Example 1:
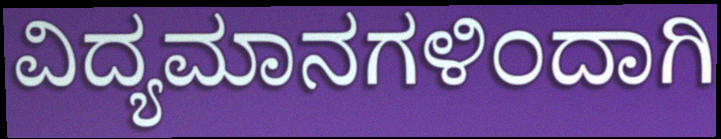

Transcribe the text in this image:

ವಿದ್ಯಮಾನಗಳಿಂದಾಗಿ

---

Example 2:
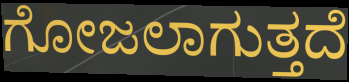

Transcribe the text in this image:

ಗೋಜಲಾಗುತ್ತದೆ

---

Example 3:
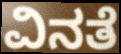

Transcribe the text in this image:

ವಿನತೆ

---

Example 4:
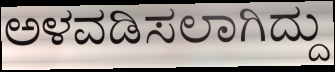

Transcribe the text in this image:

ಅಳವಡಿಸಲಾಗಿದ್ದು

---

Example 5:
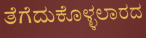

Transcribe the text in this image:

ತೆಗೆದುಕೊಳ್ಳಲಾರದ